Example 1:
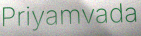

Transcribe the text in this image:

Priyamvada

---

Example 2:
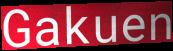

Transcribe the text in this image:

Gakuen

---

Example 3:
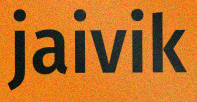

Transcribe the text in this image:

jaivik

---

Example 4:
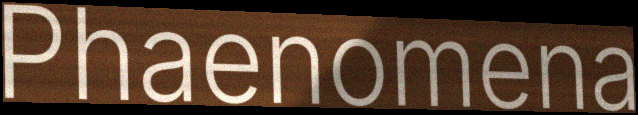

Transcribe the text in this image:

Phaenomena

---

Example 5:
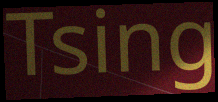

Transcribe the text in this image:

Tsing